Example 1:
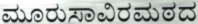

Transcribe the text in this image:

ಮೂರುಸಾವಿರಮಠದ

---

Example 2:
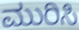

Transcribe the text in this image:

ಮುರಿಸಿ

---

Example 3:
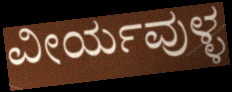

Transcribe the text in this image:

ವೀರ್ಯವುಳ್ಳ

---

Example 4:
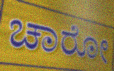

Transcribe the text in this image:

ಚಾರೋ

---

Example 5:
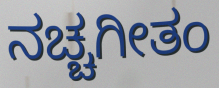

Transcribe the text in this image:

ನಚ್ಚಗೀತಂ